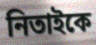
নিতাইকে